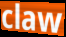
claw